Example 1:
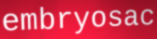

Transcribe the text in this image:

embryosac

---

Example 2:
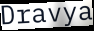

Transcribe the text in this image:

Dravya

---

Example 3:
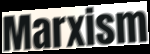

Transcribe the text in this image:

Marxism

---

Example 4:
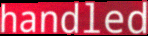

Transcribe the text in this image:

handled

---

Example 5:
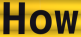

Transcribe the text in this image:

How